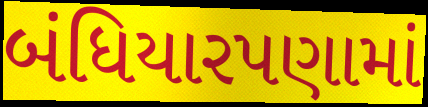
બંધિયારપણામાં